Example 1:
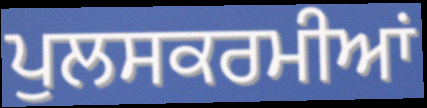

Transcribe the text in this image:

ਪੁਲਸਕਰਮੀਆਂ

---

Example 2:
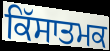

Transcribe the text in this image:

ਕਿੱਸਾਤਮਕ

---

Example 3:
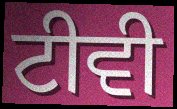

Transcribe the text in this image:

ਟੀਵੀ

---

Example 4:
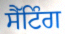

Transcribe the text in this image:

ਸੈੱਟਿੰਗ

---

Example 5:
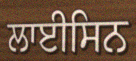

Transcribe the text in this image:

ਲਾਈਸਿਨ